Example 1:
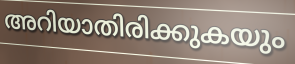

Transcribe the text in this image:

അറിയാതിരിക്കുകയും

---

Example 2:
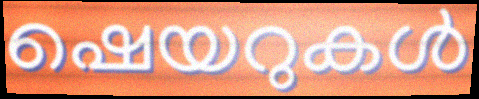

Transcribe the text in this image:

ഷെയറുകൾ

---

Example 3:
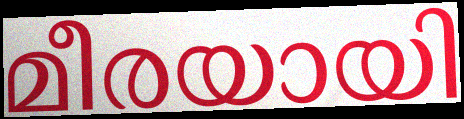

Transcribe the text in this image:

മീരയായി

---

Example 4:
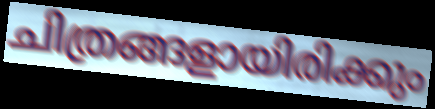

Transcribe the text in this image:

ചിത്രങ്ങളായിരിക്കും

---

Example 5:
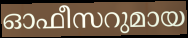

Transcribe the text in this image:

ഓഫീസറുമായ